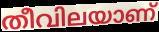
തീവിലയാണ്